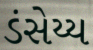
ડંસેય્ય